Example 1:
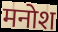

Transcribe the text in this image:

मनोश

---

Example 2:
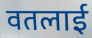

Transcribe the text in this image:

वतलाई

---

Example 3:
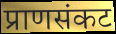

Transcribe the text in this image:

प्राणसंकट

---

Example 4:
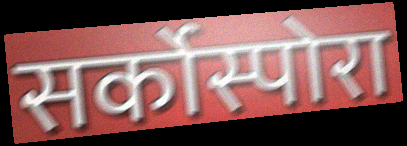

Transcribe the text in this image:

सर्कोस्पोरा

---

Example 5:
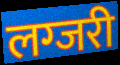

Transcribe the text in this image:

लग्‍जरी